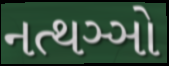
નત્થઞ્ઞો